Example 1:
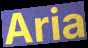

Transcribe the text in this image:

Aria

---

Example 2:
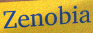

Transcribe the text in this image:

Zenobia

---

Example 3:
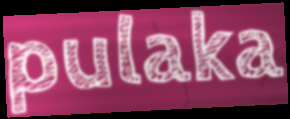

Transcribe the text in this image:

pulaka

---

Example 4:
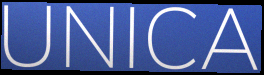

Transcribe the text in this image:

UNICA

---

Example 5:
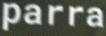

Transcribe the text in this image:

parra